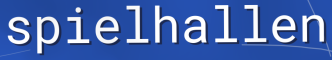
spielhallen